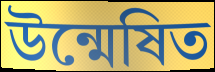
উন্মেষিত